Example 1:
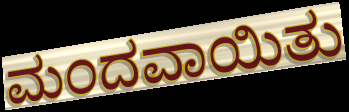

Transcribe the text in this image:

ಮಂದವಾಯಿತು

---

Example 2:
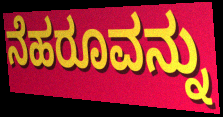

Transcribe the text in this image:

ನೆಹರೂವನ್ನು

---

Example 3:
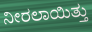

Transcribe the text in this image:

ನೀರಲಾಯಿತ್ತು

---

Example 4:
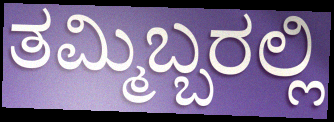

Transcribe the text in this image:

ತಮ್ಮಿಬ್ಬರಲ್ಲಿ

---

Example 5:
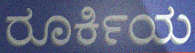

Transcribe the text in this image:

ರೂರ್ಕಿಯ